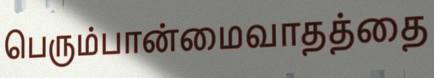
பெரும்பான்மைவாதத்தை